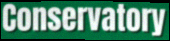
Conservatory